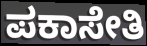
ಪಕಾಸೇತಿ